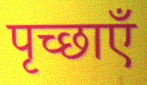
पृच्छाएँ